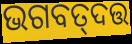
ଭଗବତ୍‌ଦତ୍ତ